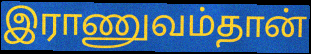
இராணுவம்தான்